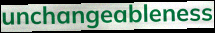
unchangeableness